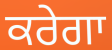
ਕਰੇਗਾ